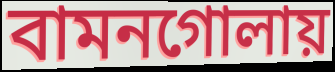
বামনগোলায়